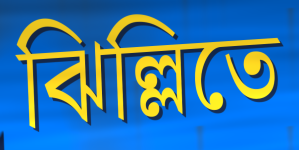
ঝিল্লিতে